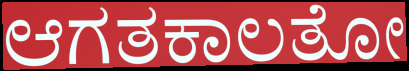
ಆಗತಕಾಲತೋ